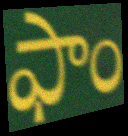
ఫాం